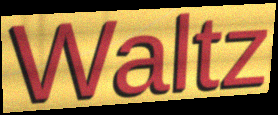
Waltz